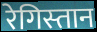
रेगिस्‍तान